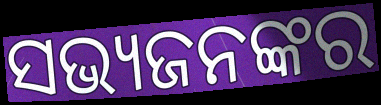
ସଭ୍ୟଜନଙ୍କର